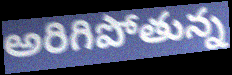
అరిగిపోతున్న